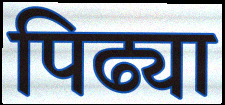
पिढ्या